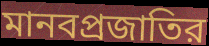
মানবপ্রজাতির